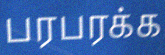
பரபரக்க